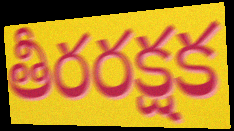
తీరరక్షక